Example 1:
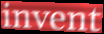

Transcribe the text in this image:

invent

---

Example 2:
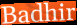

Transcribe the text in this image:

Badhir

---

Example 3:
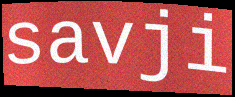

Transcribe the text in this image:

savji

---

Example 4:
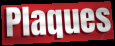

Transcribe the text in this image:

Plaques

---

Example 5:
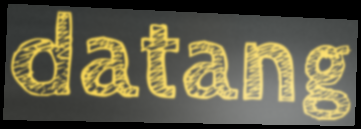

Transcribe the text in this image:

datang